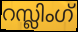
റസ്ലിംഗ്